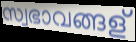
സ്വഭാവങ്ങള്